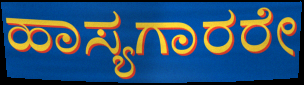
ಹಾಸ್ಯಗಾರರೇ